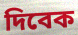
দিবেক